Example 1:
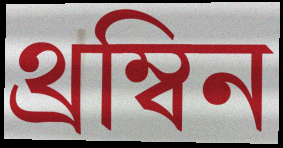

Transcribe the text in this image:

থ্রম্বিন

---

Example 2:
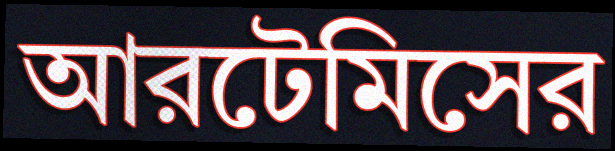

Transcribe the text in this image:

আরটেমিসের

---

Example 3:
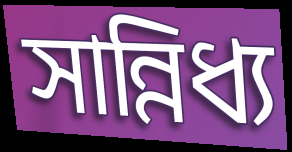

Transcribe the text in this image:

সান্নিধ্য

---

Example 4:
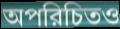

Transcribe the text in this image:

অপরিচিতও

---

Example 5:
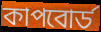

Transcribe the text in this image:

কাপবোর্ড